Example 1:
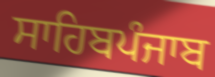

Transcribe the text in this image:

ਸਾਹਿਬਪੰਜਾਬ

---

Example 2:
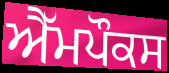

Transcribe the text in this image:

ਐੱਮਪੌਕਸ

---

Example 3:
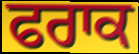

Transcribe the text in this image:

ਫਰਾਕ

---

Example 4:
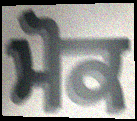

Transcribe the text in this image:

ਮੋਕ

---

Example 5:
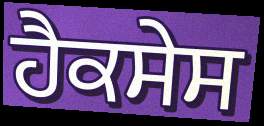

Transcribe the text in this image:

ਹੈਕਸੇਸ